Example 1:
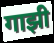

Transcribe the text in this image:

गाझी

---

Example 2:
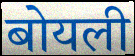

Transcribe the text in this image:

बोयली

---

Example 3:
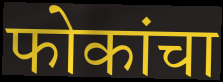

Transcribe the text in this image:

फोकांचा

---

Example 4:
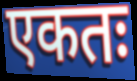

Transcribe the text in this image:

एकतः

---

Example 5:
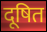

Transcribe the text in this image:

दूषित